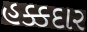
હક્કદાર